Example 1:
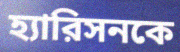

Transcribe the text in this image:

হ্যারিসনকে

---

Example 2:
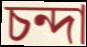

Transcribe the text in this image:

চন্দা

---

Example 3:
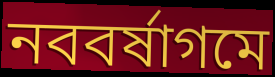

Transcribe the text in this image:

নববর্ষাগমে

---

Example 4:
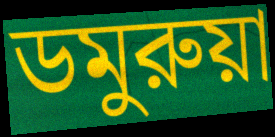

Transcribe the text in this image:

ডমুরুয়া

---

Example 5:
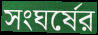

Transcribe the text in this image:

সংঘর্ষের